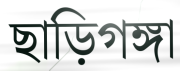
ছাড়িগঙ্গা